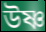
উষ্ণ